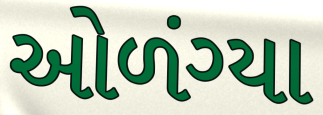
ઓળંગ્યા